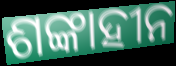
ଶଙ୍କାହୀନ